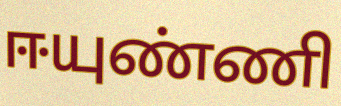
ஈயுண்ணி